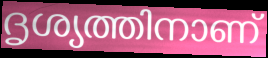
ദൃശ്യത്തിനാണ്